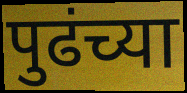
पुढंच्या